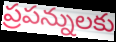
ప్రపన్నులకు